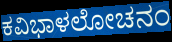
ಕವಿಭಾಳಲೋಚನಂ